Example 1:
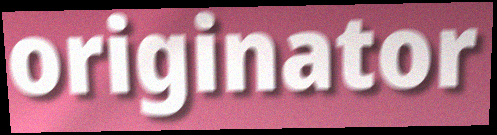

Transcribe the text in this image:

originator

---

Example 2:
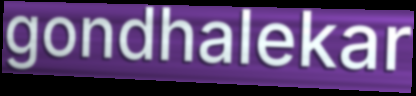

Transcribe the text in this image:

gondhalekar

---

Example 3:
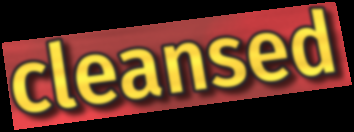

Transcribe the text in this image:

cleansed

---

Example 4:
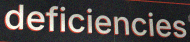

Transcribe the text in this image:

deficiencies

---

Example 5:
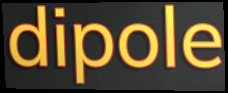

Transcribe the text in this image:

dipole